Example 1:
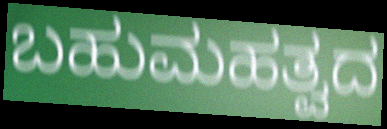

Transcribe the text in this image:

ಬಹುಮಹತ್ವದ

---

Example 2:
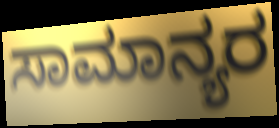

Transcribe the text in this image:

ಸಾಮಾನ್ಯರ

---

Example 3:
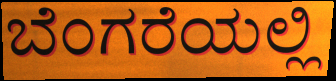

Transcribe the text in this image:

ಬೆಂಗರೆಯಲ್ಲಿ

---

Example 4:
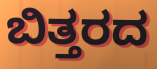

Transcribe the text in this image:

ಬಿತ್ತರದ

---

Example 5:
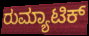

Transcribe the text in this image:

ರುಮ್ಯಾಟಿಕ್